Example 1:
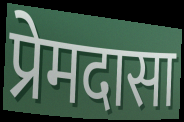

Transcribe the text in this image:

प्रेमदासा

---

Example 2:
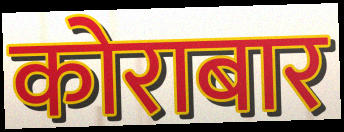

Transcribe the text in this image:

कोराबार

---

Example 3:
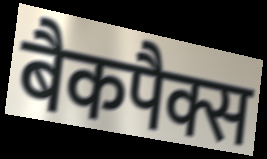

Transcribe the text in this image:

बैकपैक्स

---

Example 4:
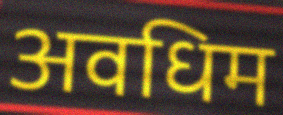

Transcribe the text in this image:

अवधिम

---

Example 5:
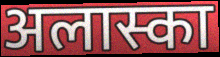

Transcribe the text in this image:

अलास्का